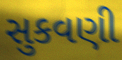
સુકવણી